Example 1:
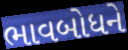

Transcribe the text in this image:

ભાવબોધને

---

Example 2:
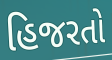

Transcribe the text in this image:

હિજરતો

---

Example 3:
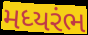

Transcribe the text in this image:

મધ્યરંભ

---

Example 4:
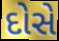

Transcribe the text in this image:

દોસે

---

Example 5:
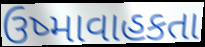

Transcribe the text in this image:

ઉષ્માવાહકતા